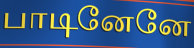
பாடினேனே